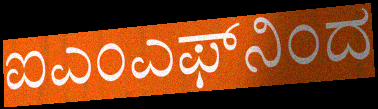
ಐಎಂಎಫ್‌ನಿಂದ